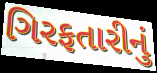
ગિરફતારીનું